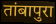
तांबापुरा